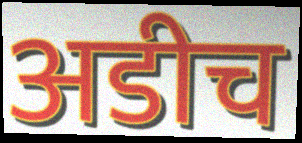
अडीच